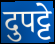
दुपट्टे